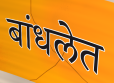
बांधलेत